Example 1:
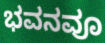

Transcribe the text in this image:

ಭವನವೂ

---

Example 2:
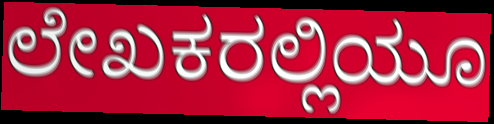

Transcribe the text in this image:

ಲೇಖಕರಲ್ಲಿಯೂ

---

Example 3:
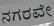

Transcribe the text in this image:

ನಗರವೇ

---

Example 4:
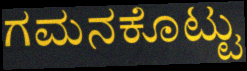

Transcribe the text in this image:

ಗಮನಕೊಟ್ಟು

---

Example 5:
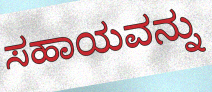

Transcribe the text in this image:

ಸಹಾಯವನ್ನು